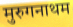
मुरुगनाथम